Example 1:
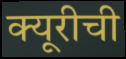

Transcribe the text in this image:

क्यूरीची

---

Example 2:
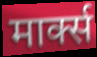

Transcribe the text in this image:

मार्क्‍स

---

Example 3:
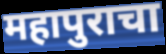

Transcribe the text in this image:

महापुराचा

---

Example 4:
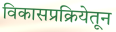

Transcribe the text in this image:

विकासप्रक्रियेतून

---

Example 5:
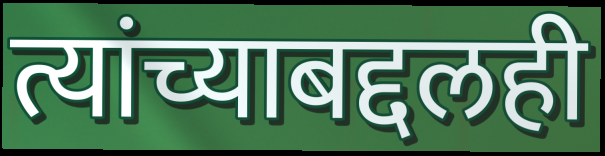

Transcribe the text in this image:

त्यांच्याबद्दलही